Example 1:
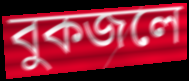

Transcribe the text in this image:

বুকজলে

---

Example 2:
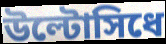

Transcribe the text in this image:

উল্টোসিধে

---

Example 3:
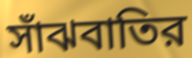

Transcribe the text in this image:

সাঁঝবাতির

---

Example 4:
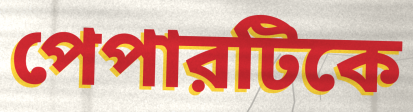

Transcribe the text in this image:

পেপারটিকে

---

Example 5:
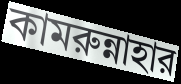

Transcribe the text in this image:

কামরুন্নাহার